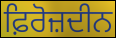
ਫ਼ਿਰੋਜ਼ਦੀਨ